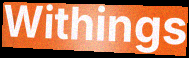
Withings